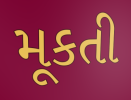
મૂકતી